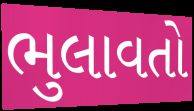
ભુલાવતો